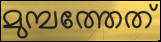
മുമ്പത്തേത്